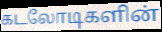
கடலோடிகளின்